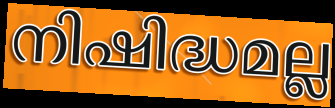
നിഷിദ്ധമല്ല